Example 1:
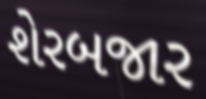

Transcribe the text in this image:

શેરબજાર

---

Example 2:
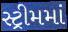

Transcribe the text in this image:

સ્ટ્રીમમાં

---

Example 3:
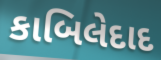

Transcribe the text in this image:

કાબિલેદાદ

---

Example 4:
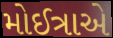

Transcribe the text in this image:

મોઈત્રાએ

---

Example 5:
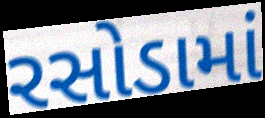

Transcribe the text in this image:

રસોડામાં